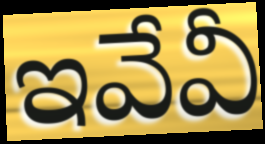
ఇవేవీ